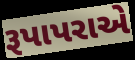
રૂપાપરાએ